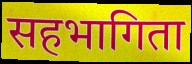
सहभागिता